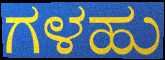
ಗಳಹು